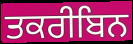
ਤਕਰੀਬਿਨ